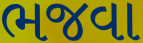
ભજવા